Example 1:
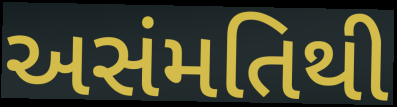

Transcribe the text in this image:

અસંમતિથી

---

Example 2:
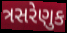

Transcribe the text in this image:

ત્રસરેણુક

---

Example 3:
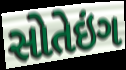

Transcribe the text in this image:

સોતેઇંગ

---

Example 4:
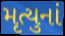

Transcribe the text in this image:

મૃત્યુનાં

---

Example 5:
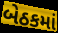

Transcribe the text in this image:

બેઠકમાં